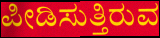
ಪೀಡಿಸುತ್ತಿರುವ